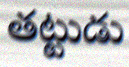
తట్టుడు